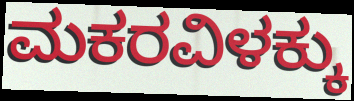
ಮಕರವಿಳಕ್ಕು